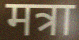
मत्रा